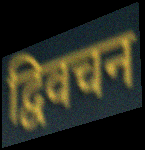
द्विवचन